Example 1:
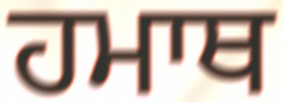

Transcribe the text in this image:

ਹਮਾਥ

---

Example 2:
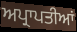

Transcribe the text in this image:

ਅਪ੍ਰਾਪਤੀਆਂ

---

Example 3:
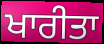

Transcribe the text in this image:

ਖਾਰੀਤਾ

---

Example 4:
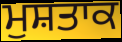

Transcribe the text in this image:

ਮੁਸ਼ਤਾਕ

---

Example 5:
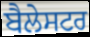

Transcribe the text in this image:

ਬੈਲੇਸਟਰ